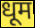
धूम